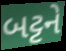
બટ્ટને